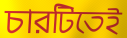
চারটিতেই